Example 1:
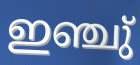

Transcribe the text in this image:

ഇഞ്ചു്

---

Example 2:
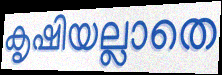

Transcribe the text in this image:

കൃഷിയല്ലാതെ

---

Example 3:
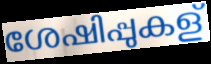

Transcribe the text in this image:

ശേഷിപ്പുകള്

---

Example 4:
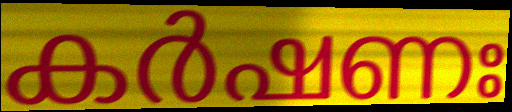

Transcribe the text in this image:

കർഷണഃ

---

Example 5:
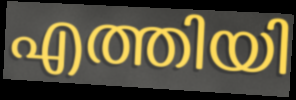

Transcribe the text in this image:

എത്തിയി